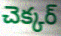
చెక్కర్